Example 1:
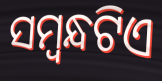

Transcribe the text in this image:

ସମ୍ବନ୍ଧଟିଏ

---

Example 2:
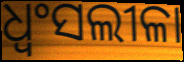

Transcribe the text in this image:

ଧ୍ୱଂସଲୀଳା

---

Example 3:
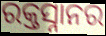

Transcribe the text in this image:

ରକ୍ତସ୍ନାନର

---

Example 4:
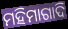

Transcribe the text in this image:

ମହିମାଗାଦି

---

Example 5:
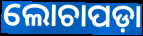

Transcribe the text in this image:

ଲୋଚାପଡ଼ା